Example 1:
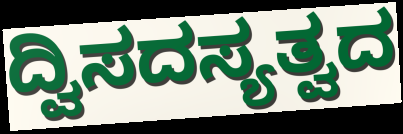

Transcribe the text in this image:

ದ್ವಿಸದಸ್ಯತ್ವದ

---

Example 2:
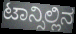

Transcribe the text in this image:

ಟಾನ್ಸಿಲ್ಲಿನ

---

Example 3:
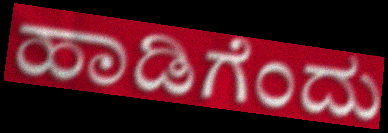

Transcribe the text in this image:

ಹಾಡಿಗೆಂದು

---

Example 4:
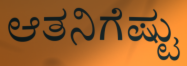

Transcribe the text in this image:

ಆತನಿಗೆಷ್ಟು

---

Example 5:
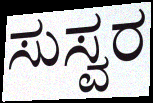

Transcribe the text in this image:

ಸುಸ್ವರ